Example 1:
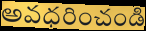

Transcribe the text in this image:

అవధరించండి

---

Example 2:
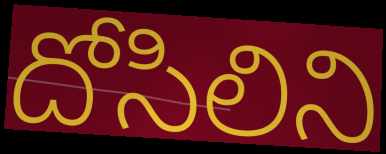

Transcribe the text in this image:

దోసిలిని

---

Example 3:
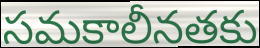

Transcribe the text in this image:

సమకాలీనతకు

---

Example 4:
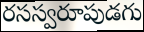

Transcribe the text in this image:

రసస్వరూపుడగు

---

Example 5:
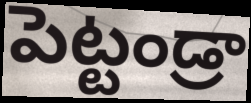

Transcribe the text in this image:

పెట్టండ్రా